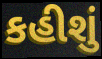
કહીશું